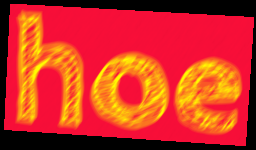
hoe